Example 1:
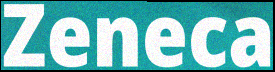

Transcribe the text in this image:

Zeneca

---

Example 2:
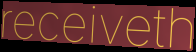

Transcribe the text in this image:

receiveth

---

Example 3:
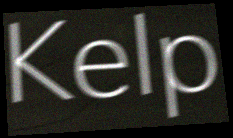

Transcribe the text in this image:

Kelp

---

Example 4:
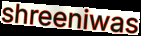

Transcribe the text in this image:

shreeniwas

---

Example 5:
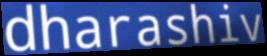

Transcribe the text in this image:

dharashiv